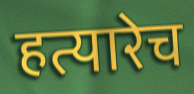
हत्यारेच